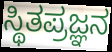
ಸ್ಥಿತಪ್ರಜ್ಞನ